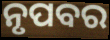
ନୃପବର